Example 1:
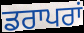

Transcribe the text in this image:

ਡਰਾਪਰਾਂ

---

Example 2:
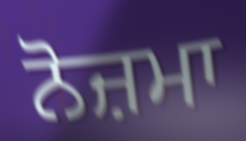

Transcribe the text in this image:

ਨੋਜ਼ਮਾ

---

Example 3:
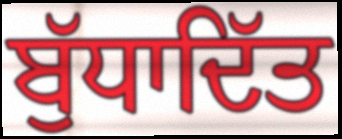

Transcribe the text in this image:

ਬੁੱਧਾਦਿੱਤ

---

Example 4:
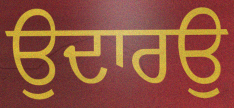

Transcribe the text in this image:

ਉਦਾਰਉ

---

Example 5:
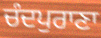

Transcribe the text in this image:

ਚੰਦਪੁਰਾਣਾ